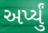
અર્પ્યું